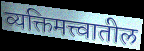
व्यक्तिमत्त्वातील